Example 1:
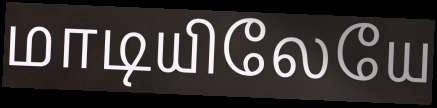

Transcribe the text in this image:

மாடியிலேயே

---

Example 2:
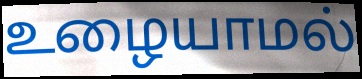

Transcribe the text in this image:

உழையாமல்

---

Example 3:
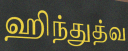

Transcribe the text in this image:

ஹிந்துத்வ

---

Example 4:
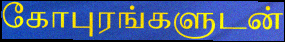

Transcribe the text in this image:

கோபுரங்களுடன்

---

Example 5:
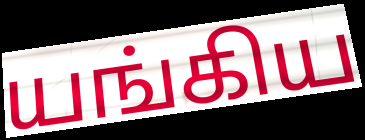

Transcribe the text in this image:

யங்கிய